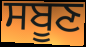
ਸਬੂਣ